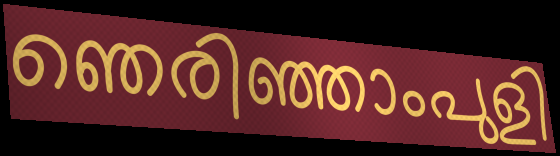
ഞെരിഞ്ഞാംപുളി